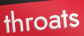
throats